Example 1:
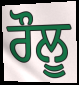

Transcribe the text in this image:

ਰੌਲੂ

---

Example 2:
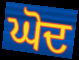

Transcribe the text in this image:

ਘੋਦ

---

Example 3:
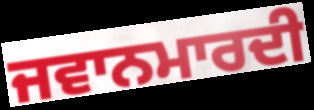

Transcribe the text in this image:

ਜਵਾਨਮਾਰਦੀ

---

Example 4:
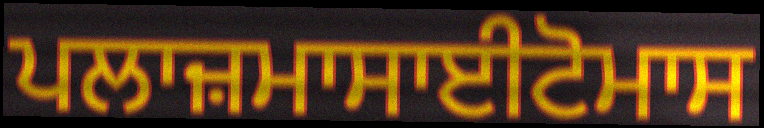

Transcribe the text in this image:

ਪਲਾਜ਼ਮਾਸਾਈਟੋਮਾਸ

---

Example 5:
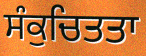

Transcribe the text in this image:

ਸੰਕੁਚਿਤਤਾ